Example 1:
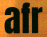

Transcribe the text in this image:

afr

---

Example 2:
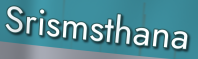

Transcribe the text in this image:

Srismsthana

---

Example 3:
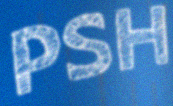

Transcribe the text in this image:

PSH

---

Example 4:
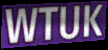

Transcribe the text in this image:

WTUK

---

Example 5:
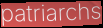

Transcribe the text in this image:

patriarchs